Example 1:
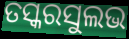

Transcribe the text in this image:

ତସ୍କରସୁଲଭ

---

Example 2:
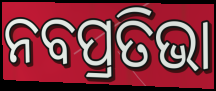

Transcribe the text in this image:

ନବପ୍ରତିଭା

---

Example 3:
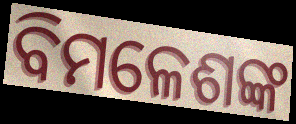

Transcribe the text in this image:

ବିମଳେଶଙ୍କ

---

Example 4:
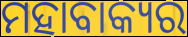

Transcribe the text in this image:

ମହାବାକ୍ୟର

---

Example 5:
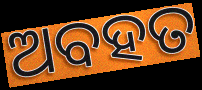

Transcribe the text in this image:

ଅବହତ